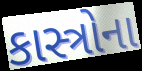
કાસ્ત્રોના